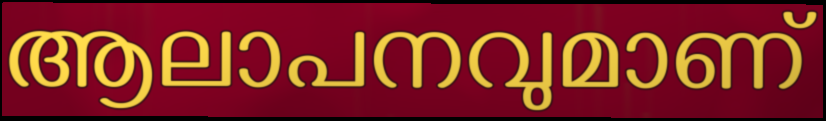
ആലാപനവുമാണ്